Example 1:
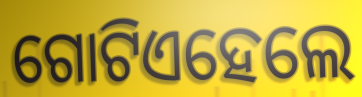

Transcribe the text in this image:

ଗୋଟିଏହେଲେ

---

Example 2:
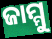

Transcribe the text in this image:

ଜାମ୍ମୁ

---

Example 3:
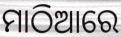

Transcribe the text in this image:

ମାଠିଆରେ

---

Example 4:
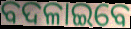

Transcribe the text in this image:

ବଦଳାଇବେ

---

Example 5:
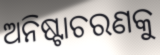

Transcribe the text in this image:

ଅନିଷ୍ଟାଚରଣକୁ